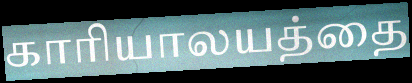
காரியாலயத்தை